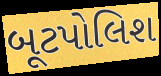
બૂટપોલિશ